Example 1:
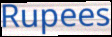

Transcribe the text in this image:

Rupees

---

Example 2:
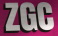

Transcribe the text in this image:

ZGC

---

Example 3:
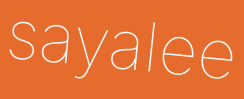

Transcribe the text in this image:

sayalee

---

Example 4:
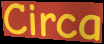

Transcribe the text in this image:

Circa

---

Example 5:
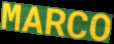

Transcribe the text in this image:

MARCO